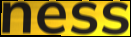
ness